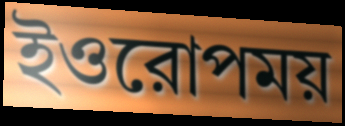
ইওরোপময়